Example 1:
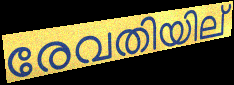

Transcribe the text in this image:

രേവതിയില്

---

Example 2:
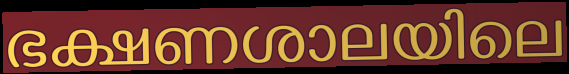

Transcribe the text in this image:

ഭക്ഷണശാലയിലെ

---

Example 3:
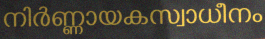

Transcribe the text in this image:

നിർണ്ണായകസ്വാധീനം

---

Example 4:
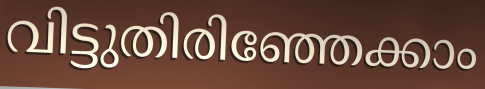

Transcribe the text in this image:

വിട്ടുതിരിഞ്ഞേക്കാം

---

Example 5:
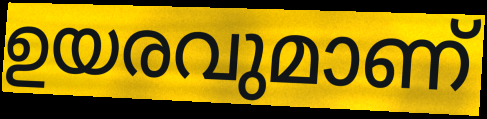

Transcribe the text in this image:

ഉയരവുമാണ്